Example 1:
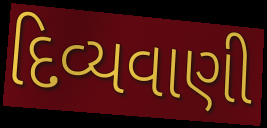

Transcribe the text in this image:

દિવ્યવાણી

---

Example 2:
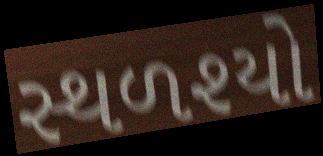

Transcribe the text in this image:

સ્થળશ્યો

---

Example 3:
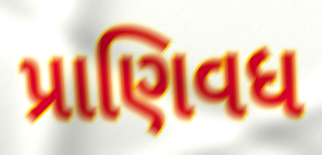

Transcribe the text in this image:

પ્રાણિવધ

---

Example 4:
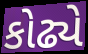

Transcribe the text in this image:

કોઢ્યે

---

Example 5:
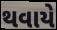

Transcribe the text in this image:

થવાયે